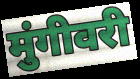
मुंगीवरी